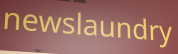
newslaundry